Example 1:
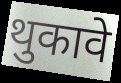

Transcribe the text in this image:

थुकावे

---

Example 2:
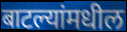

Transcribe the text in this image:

बाटल्यांमधील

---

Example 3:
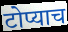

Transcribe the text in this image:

टोप्याच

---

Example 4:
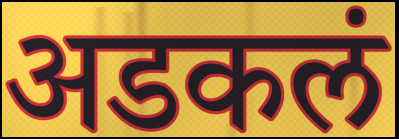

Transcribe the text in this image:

अडकलं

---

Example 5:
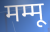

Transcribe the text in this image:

मम्मू